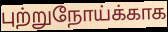
புற்றுநோய்க்காக